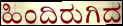
ಹಿಂದಿರುಗಿದ